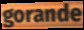
gorande